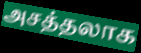
அசத்தலாக